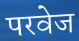
परवेज